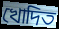
খোদিত